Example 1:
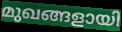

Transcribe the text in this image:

മുഖങ്ങളായി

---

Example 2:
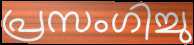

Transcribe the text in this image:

പ്രസംഗിച്ചു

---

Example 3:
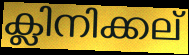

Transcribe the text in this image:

ക്ലിനിക്കല്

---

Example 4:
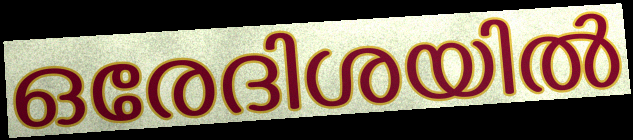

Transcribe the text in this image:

ഒരേദിശയിൽ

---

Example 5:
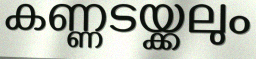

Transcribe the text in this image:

കണ്ണടയ്ക്കലും